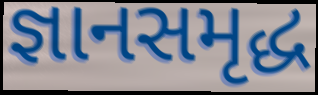
જ્ઞાનસમૃદ્ધ